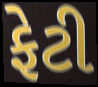
ફેટી